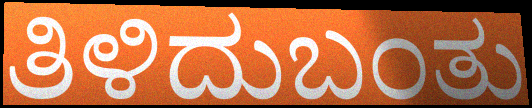
ತಿಳಿದುಬಂತು